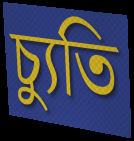
চ্যুতি